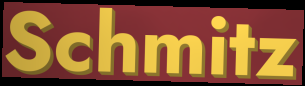
Schmitz